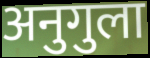
अनुगुला